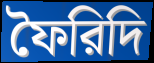
ফৈরিদি